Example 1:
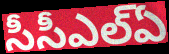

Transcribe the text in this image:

సీసీఎల్ఏ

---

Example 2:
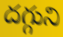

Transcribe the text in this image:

దగ్గుని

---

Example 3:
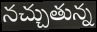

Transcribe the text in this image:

నచ్చుతున్న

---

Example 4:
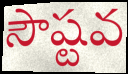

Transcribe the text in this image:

సౌష్టవ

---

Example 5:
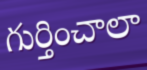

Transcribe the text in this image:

గుర్తించాలా